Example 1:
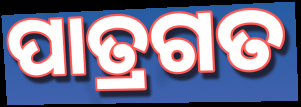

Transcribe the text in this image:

ପାତ୍ରଗତ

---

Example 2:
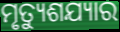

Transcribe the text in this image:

ମୃତ୍ୟୁଶଯ୍ୟାର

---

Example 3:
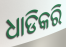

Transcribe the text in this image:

ଧାଡିକରି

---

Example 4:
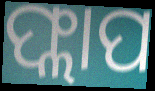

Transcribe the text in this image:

ଫ୍ଲାପ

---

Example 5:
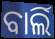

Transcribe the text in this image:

ବାର୍ଲି